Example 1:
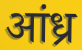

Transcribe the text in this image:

आंध्र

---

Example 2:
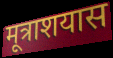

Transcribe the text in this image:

मूत्राशयास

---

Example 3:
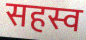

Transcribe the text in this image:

सहस्व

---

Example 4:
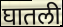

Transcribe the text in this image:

घातली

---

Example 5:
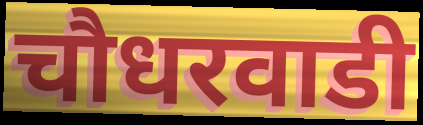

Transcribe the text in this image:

चौधरवाडी